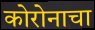
कोरोनाचा